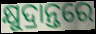
କ୍ଷୁଦ୍ରାନ୍ତରେ